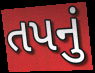
તપનું